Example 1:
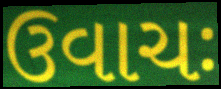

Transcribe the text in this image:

ઉવાચઃ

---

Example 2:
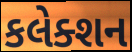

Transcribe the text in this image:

કલેક્શન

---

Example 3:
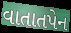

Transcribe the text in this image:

વાતાતપેન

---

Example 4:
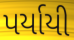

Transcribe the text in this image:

પર્યાયી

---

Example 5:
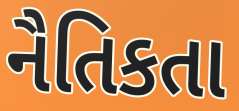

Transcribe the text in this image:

નૈતિકતા